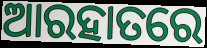
ଆରହାତରେ